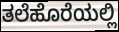
ತಲೆಹೊರೆಯಲ್ಲಿ